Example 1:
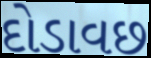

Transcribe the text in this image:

દોડાવછ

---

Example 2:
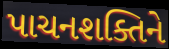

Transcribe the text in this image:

પાચનશક્તિને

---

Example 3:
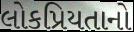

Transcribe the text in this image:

લોકપ્રિયતાનો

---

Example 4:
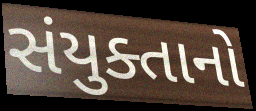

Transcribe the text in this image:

સંયુક્તાનો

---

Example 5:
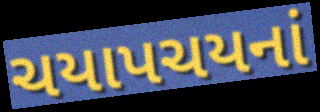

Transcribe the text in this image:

ચયાપચયનાં